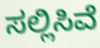
ಸಲ್ಲಿಸಿವೆ